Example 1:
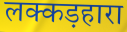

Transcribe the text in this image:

लक्कड़हारा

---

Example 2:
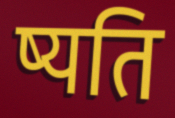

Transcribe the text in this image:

ष्यति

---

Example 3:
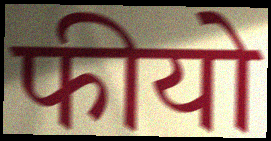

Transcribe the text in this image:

फीयो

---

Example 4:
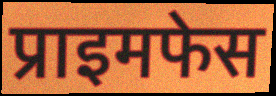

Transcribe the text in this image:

प्राइमफेस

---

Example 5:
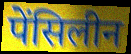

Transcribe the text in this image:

पेंसिलीन